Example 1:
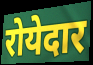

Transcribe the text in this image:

रोयेदार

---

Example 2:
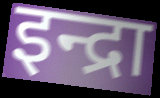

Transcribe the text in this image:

इन्द्रा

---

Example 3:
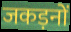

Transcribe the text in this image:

जकड़नों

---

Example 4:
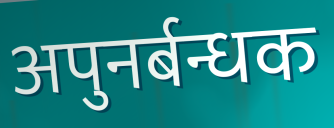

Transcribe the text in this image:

अपुनर्बन्धक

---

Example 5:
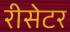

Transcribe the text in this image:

रीसेटर